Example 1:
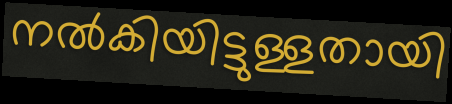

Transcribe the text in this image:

നൽകിയിട്ടുള്ളതായി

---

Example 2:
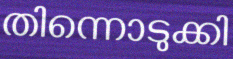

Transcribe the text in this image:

തിന്നൊടുക്കി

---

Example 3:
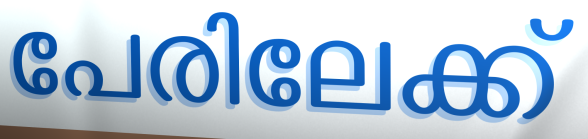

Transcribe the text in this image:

പേരിലേക്ക്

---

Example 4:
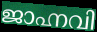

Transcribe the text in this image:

ജാഹ്നവി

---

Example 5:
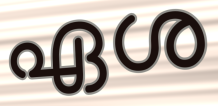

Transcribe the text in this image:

ഏശ